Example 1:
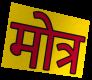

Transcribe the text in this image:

मोत्र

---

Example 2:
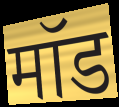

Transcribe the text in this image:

मॉड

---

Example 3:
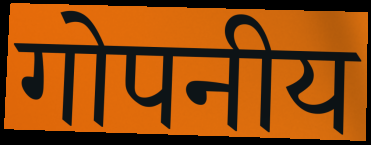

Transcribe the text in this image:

गोपनीय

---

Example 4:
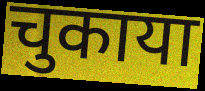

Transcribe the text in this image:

चुकाया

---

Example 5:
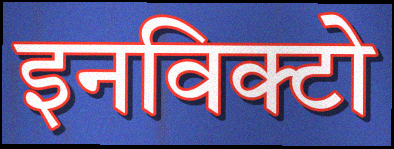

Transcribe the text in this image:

इनविक्टो